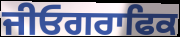
ਜੀਓਗਰਾਫਿਕ